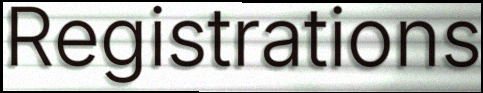
Registrations